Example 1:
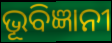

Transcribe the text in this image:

ଭୂବିଜ୍ଞାନୀ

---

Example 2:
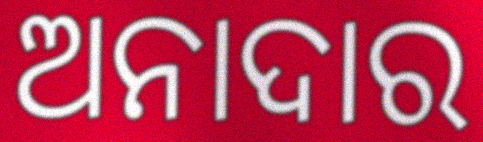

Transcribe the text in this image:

ଅନାଦାର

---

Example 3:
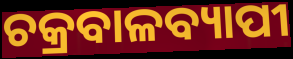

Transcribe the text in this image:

ଚକ୍ରବାଳବ୍ୟାପୀ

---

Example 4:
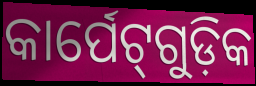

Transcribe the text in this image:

କାର୍ପେଟ୍‌ଗୁଡ଼ିକ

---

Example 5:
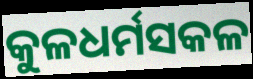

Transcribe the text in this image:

କୁଳଧର୍ମସକଳ